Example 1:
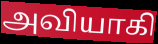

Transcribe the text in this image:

அவியாகி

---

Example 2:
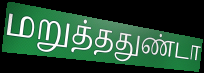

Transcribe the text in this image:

மறுத்ததுண்டா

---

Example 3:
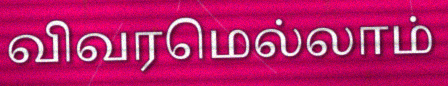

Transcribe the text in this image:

விவரமெல்லாம்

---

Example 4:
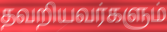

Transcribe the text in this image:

தவறியவர்களும்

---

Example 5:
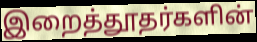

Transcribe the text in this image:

இறைத்தூதர்களின்